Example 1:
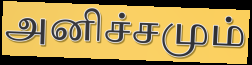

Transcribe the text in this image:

அனிச்சமும்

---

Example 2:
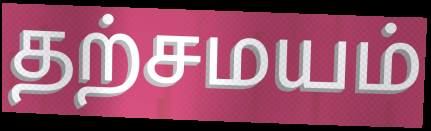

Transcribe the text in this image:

தற்சமயம்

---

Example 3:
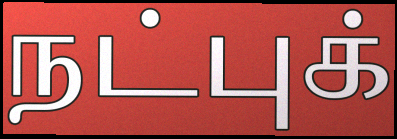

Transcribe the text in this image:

நட்புக்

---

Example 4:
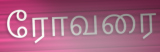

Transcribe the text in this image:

ரோவரை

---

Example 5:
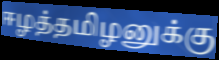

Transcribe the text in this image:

ஈழத்தமிழனுக்கு